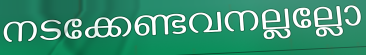
നടക്കേണ്ടവനല്ലല്ലോ